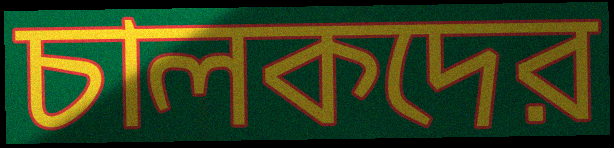
চালকদের